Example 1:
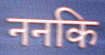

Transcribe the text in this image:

ननकि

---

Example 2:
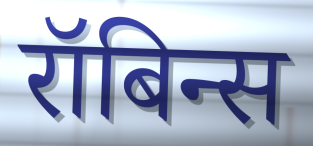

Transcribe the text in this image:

रॉबिन्स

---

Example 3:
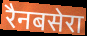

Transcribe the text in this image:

रैनबसेरा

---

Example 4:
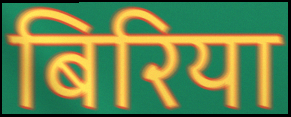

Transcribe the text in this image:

बिरिया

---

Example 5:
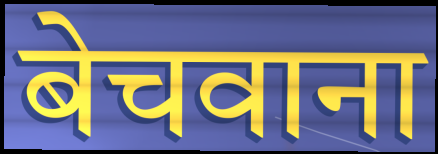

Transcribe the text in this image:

बेचवाना